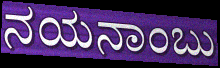
ನಯನಾಂಬು